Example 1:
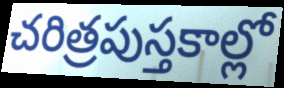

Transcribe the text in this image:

చరిత్రపుస్తకాల్లో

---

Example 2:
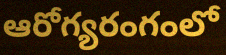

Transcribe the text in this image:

ఆరోగ్యరంగంలో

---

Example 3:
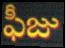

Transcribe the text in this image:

ఫీజు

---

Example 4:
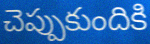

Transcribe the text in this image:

చెప్పుకుందికి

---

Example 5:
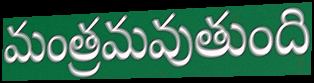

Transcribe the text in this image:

మంత్రమవుతుంది